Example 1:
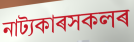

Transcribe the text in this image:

নাট্যকাৰসকলৰ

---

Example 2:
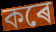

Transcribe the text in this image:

কৰে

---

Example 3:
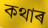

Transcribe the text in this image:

কথাৰ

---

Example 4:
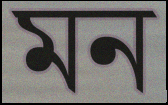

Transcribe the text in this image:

মন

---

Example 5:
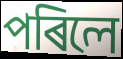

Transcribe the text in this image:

পৰিলে